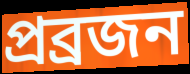
প্ৰব্ৰজন